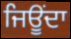
ਜਿਊਂਦਾ